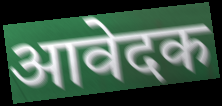
आवेदक